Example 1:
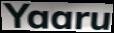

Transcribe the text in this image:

Yaaru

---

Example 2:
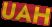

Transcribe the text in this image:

UAH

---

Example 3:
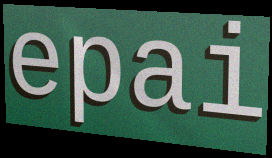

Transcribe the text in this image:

epai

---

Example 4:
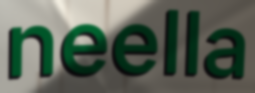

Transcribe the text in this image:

neella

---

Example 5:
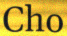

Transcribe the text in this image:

Cho